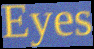
Eyes